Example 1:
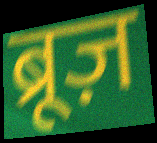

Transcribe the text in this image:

ब्रूज़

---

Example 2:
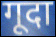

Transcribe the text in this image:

गूदा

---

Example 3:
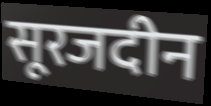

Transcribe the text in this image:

सूरजदीन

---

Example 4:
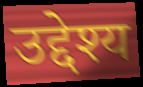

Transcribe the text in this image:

उद्देश्‍य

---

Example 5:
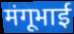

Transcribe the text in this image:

मंगूभाई